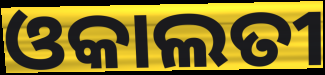
ଓକାଲତୀ